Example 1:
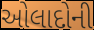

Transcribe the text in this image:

ઓલાદોની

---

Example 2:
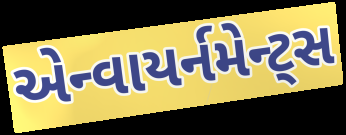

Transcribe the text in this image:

એન્વાયર્નમેન્ટ્સ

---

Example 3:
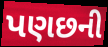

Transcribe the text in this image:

પણછની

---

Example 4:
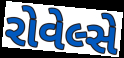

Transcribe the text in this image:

રોવેલ્સે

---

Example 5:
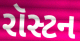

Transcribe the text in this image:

રૉસ્ટન